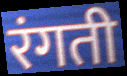
रंगती